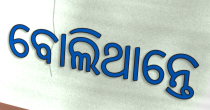
ବୋଲିଥାନ୍ତେ